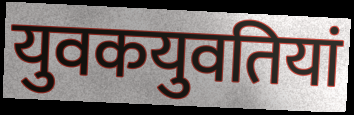
युवकयुवतियां